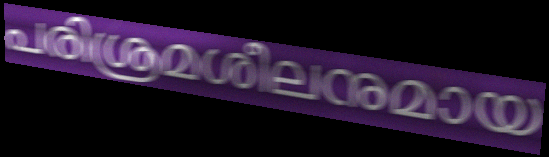
പരിശ്രമശീലനുമായ